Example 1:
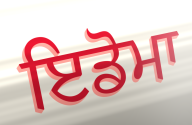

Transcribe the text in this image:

ਇਡੋਮਾ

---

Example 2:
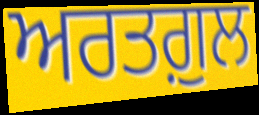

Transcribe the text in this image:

ਅਰਤਗ਼ੁਲ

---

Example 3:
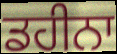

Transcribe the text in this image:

ਡਹੀਨਾ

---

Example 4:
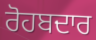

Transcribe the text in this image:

ਰੋਹਬਦਾਰ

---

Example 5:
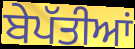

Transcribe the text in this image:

ਬੇਪੱਤੀਆਂ